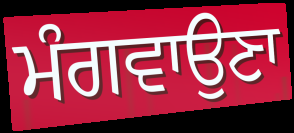
ਮੰਗਵਾਉਣਾ